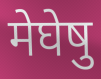
मेघेषु